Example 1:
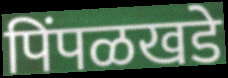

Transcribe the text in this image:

पिंपळखडे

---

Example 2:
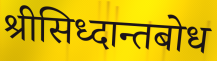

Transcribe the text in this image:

श्रीसिध्दान्तबोध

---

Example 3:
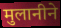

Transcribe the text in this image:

मुलानीने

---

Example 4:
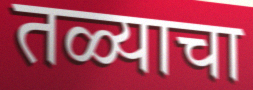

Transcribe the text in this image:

तळ्याचा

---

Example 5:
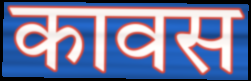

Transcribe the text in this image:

कावस